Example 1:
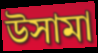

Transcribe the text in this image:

উসামা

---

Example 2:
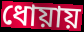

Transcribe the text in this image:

ধোয়ায়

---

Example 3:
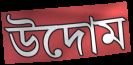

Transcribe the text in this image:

উদোম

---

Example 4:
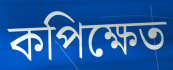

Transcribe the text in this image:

কপিক্ষেত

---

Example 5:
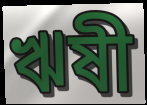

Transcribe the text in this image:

ঋষী